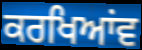
ਕਰਖਿਆਂਵ